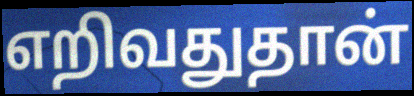
எறிவதுதான்